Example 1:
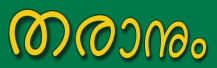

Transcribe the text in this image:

തരാനും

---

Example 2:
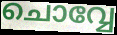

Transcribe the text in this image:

ചൊവ്വേ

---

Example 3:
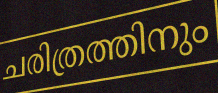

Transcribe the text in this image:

ചരിത്രത്തിനും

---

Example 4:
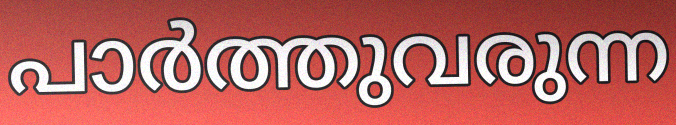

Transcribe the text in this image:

പാർത്തുവരുന്ന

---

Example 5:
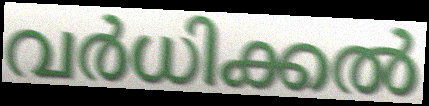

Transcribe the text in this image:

വർധിക്കൽ